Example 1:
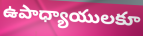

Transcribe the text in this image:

ఉపాధ్యాయులకూ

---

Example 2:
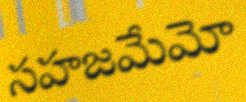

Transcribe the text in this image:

సహజమేమో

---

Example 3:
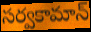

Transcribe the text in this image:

సర్వకామాన్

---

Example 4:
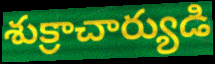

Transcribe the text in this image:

శుక్రాచార్యుడి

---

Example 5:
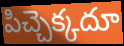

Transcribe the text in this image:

పిచ్చెక్కదూ